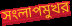
সংলাপমুখর